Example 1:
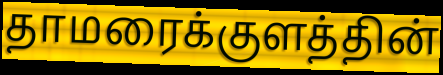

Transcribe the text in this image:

தாமரைக்குளத்தின்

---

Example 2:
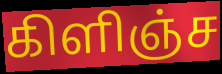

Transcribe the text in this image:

கிளிஞ்ச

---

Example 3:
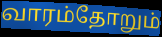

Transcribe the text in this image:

வாரம்தோறும்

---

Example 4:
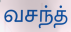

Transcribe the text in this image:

வசந்த்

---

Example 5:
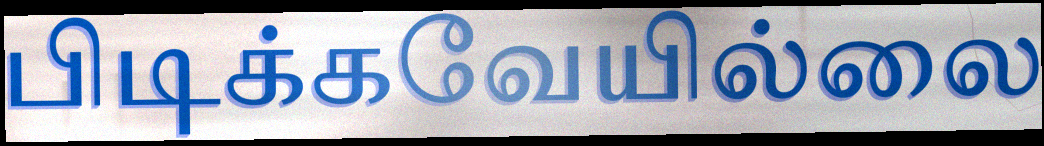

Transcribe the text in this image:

பிடிக்கவேயில்லை